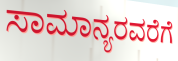
ಸಾಮಾನ್ಯರವರೆಗೆ